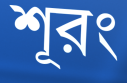
শূরং